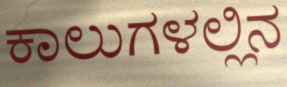
ಕಾಲುಗಳಲ್ಲಿನ